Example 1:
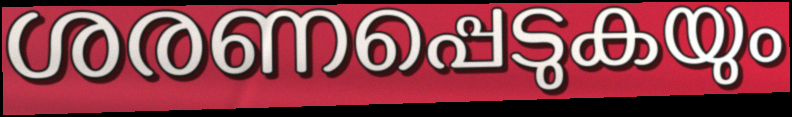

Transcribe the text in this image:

ശരണപ്പെടുകയും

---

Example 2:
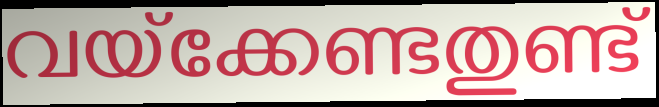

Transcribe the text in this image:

വയ്‌ക്കേണ്ടതുണ്ട്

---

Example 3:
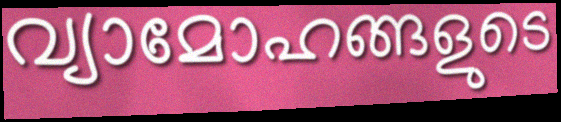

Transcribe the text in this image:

വ്യാമോഹങ്ങളുടെ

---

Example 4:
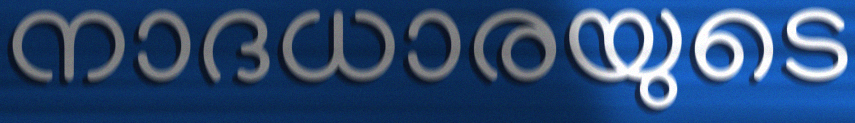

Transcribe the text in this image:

നാദധാരയുടെ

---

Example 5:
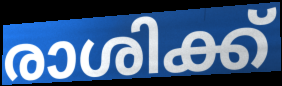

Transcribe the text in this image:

രാശിക്ക്